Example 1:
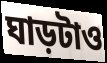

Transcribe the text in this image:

ঘাড়টাও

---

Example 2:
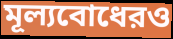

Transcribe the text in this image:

মূল্যবোধেরও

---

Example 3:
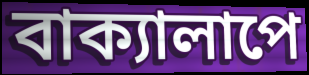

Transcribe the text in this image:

বাক্যালাপে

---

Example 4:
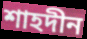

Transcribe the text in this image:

শাহদীন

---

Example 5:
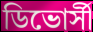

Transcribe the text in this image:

ডিভোর্সী